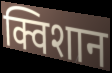
क्विशान